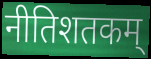
नीतिशतकम्